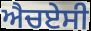
ਐਚਏਸੀ